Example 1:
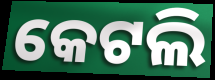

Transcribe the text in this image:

କେଟଲି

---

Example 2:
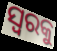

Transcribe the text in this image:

ସ୍ୱରକୁ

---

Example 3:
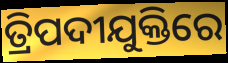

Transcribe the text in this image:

ତ୍ରିପଦୀଯୁକ୍ତିରେ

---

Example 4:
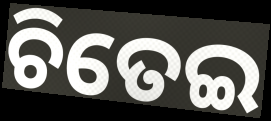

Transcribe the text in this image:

ଚିତେଇ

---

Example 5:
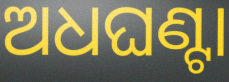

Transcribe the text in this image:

ଅଧଘଣ୍ଟା